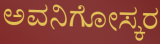
ಅವನಿಗೋಸ್ಕರ